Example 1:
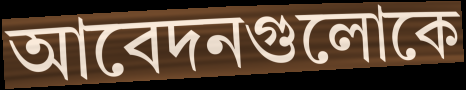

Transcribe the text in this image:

আবেদনগুলোকে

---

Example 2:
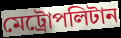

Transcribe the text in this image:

মেট্রোপলিটান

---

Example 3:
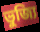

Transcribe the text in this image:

ভুজ্যি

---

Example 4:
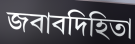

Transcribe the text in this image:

জবাবদিহিতা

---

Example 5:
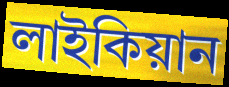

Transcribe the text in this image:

লাইকিয়ান